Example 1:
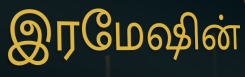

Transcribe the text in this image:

இரமேஷின்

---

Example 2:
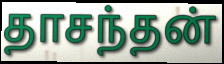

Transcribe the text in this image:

தாசந்தன்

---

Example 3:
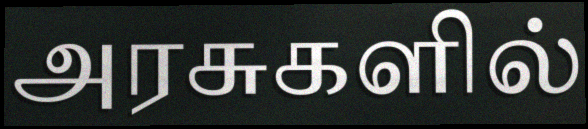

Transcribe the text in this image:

அரசுகளில்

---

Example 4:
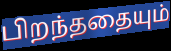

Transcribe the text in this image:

பிறந்ததையும்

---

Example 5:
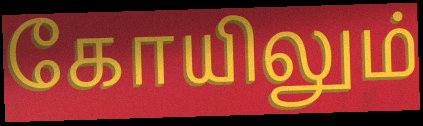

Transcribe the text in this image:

கோயிலும்